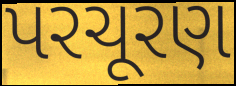
પરચૂરણ